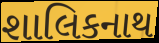
શાલિકનાથ